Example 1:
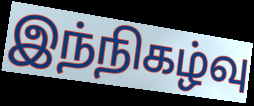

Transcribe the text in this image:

இந்நிகழ்வு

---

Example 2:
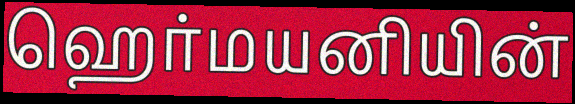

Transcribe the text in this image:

ஹெர்மயனியின்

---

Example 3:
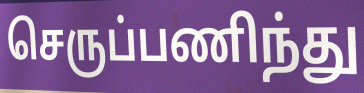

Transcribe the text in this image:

செருப்பணிந்து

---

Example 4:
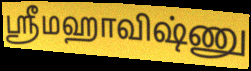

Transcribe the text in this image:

ஸ்ரீமஹாவிஷ்ணு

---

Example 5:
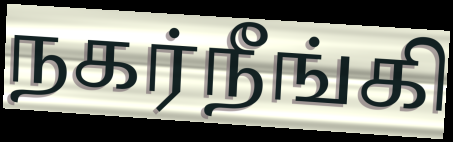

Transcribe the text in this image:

நகர்நீங்கி